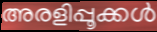
അരളിപ്പൂക്കൾ